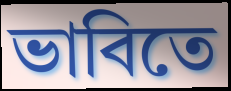
ভাবিতে